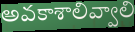
అవకాశాలివ్వాలి